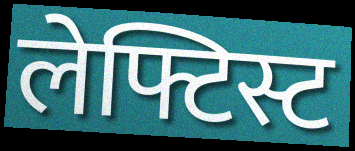
लेफ्टिस्ट